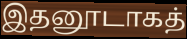
இதனூடாகத்